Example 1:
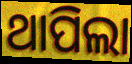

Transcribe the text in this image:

ଥାପିଲା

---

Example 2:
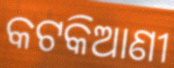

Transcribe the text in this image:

କଟକିଆଣୀ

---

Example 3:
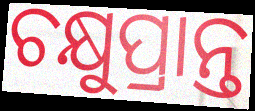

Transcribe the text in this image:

ଚକ୍ଷୁପ୍ରାନ୍ତ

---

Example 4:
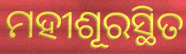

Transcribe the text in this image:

ମହୀଶୂରସ୍ଥିତ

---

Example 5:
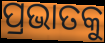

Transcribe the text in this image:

ପ୍ରଭାତକୁ